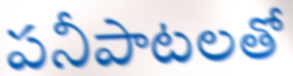
పనీపాటలతో